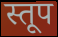
स्तूप